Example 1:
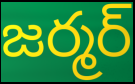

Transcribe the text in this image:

జర్మర్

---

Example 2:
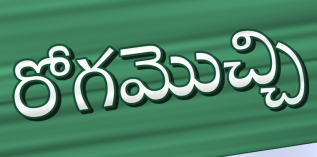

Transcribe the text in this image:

రోగమొచ్చి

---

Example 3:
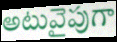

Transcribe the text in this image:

అటువైపుగా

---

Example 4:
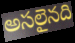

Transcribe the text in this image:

అసలైనది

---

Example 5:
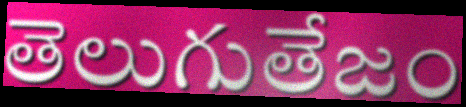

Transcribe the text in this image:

తెలుగుతేజం